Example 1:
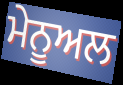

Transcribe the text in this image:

ਮੇਨੂਅਲ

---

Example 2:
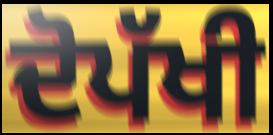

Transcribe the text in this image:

ਦੋਪੱਖੀ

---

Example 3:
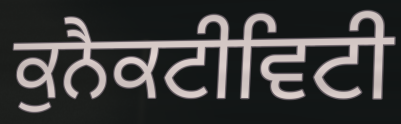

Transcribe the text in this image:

ਕੁਨੈਕਟੀਵਿਟੀ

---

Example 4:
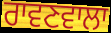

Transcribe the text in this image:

ਰਾਵਣਵਾਲਾ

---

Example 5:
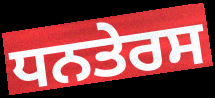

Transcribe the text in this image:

ਧਨਤੇਰਸ